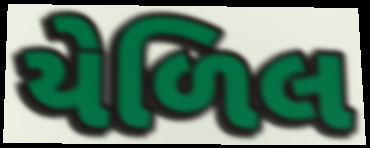
યેળિલ